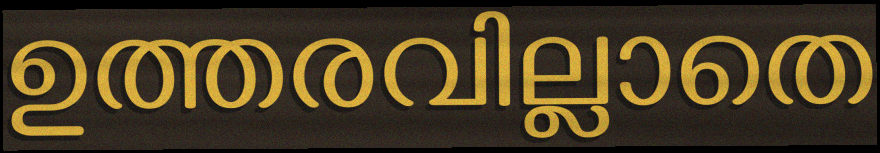
ഉത്തരവില്ലാതെ